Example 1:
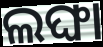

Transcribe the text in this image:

ଲଙ୍ଘା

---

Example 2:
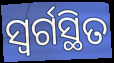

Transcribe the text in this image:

ସ୍ୱର୍ଗସ୍ଥିତ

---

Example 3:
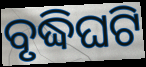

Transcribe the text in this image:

ବୃଦ୍ଧିଘଟି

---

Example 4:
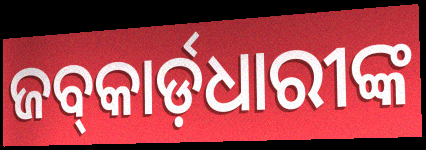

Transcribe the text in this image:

ଜବ୍‍କାର୍ଡ଼ଧାରୀଙ୍କ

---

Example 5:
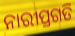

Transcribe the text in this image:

ନାରୀପ୍ରଗତି